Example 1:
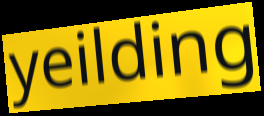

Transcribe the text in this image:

yeilding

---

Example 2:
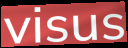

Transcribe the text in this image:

visus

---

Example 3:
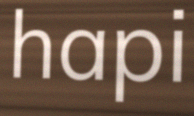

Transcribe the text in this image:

hapi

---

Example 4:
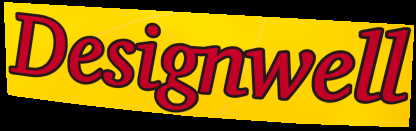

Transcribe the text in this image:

Designwell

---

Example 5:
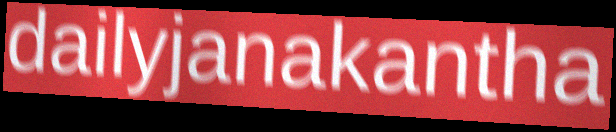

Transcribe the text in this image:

dailyjanakantha